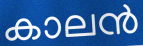
കാലൻ